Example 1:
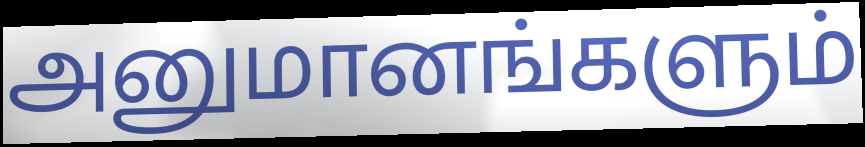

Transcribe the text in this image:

அனுமானங்களும்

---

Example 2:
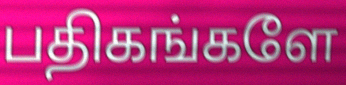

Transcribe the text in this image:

பதிகங்களே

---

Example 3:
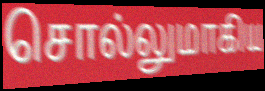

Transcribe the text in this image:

சொல்லுமாகிய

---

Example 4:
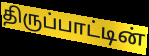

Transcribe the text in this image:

திருப்பாட்டின்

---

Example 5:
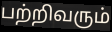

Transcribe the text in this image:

பற்றிவரும்